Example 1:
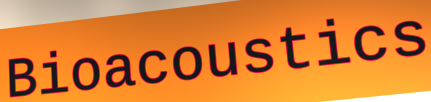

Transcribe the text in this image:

Bioacoustics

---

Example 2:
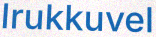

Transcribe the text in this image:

Irukkuvel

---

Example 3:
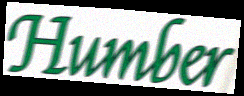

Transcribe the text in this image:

Humber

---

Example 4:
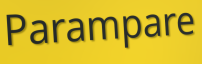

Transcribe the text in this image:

Parampare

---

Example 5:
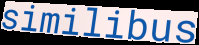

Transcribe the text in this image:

similibus